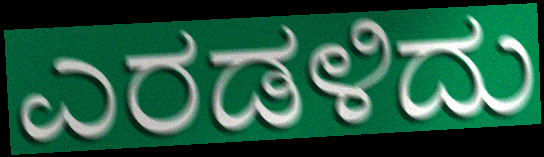
ಎರಡಳಿದು